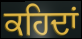
ਕਹਿਦਾਂ